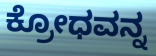
ಕ್ರೋಧವನ್ನ